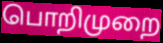
பொறிமுறை